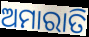
ଅମାରାତି